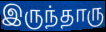
இருந்தாரு